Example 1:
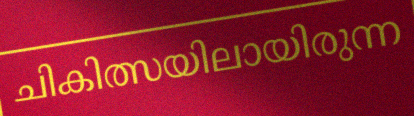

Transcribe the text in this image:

ചികിത്സയിലായിരുന്ന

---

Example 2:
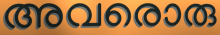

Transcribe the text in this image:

അവരൊരു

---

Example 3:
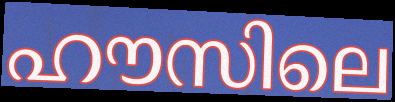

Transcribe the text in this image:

ഹൗസിലെ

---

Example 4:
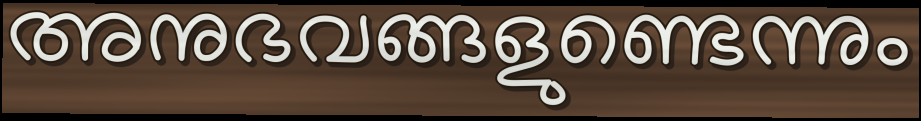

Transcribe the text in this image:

അനുഭവങ്ങളുണ്ടെന്നും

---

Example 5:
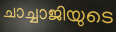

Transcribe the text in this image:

ചാച്ചാജിയുടെ